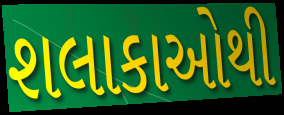
શલાકાઓથી